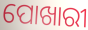
ପୋଖାରୀ